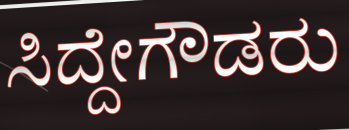
ಸಿದ್ದೇಗೌಡರು